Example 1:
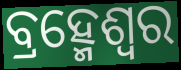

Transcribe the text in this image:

ବ୍ରହ୍ମେଶ୍ଵର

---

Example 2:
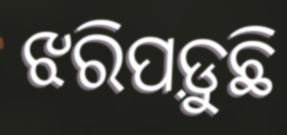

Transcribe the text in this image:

ଝରିପଡ଼ୁଛି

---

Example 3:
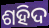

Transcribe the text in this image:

ଶହିଦ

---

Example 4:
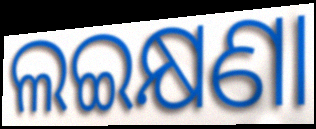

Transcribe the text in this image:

ଲଇକ୍ଷଣା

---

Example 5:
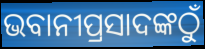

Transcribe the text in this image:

ଭବାନୀପ୍ରସାଦଙ୍କଠୁଁ